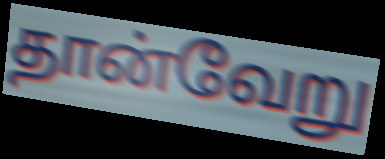
தான்வேறு